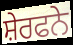
ਸ਼ੇਰਫਨੇ